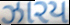
ઝારય